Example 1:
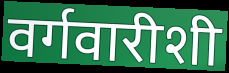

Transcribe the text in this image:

वर्गवारीशी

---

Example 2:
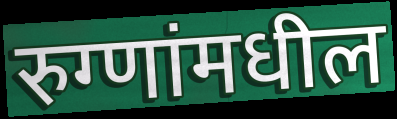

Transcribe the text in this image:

रुग्णांमधील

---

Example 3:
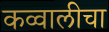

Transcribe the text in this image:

कव्वालीचा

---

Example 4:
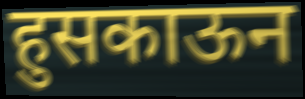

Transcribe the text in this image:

हुसकाऊन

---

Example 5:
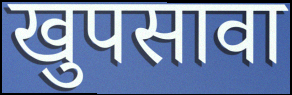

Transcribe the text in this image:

खुपसावा